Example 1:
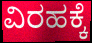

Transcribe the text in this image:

ವಿರಹಕ್ಕೆ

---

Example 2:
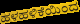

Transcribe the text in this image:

ಹಳಹಳಿಕೆಯಿಂದ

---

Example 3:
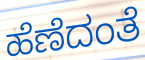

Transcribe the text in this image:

ಹೆಣೆದಂತೆ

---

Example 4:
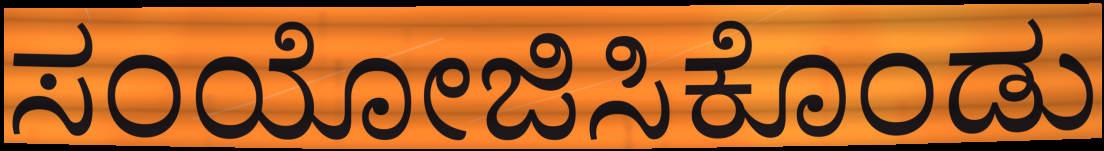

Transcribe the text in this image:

ಸಂಯೋಜಿಸಿಕೊಂಡು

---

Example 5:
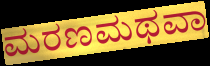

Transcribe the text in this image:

ಮರಣಮಥವಾ